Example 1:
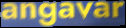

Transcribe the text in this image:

angavar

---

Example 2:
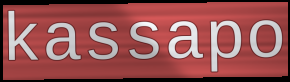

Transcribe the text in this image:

kassapo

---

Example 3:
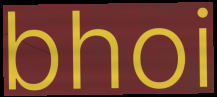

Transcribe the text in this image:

bhoi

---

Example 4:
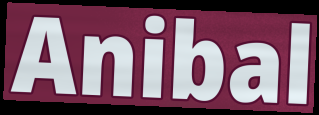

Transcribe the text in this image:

Anibal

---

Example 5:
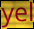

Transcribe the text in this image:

yel